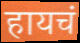
हायचं